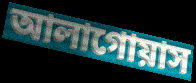
আলাগোয়াস